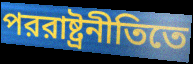
পররাষ্ট্রনীতিতে